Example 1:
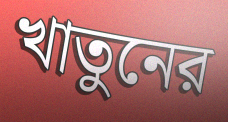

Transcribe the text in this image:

খাতুনের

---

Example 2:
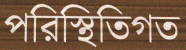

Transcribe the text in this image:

পরিস্থিতিগত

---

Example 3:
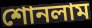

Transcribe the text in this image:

শোনলাম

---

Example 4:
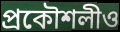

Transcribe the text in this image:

প্রকৌশলীও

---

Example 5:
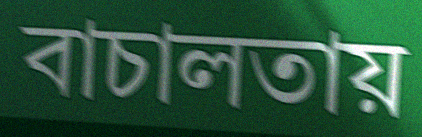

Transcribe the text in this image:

বাচালতায়